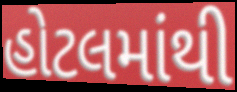
હોટલમાંથી